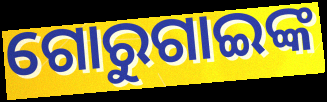
ଗୋରୁଗାଇଙ୍କ